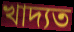
খাদ্যত